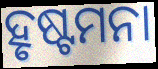
ହୃଷ୍ଟମନା